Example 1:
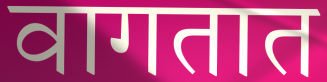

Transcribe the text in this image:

वागतात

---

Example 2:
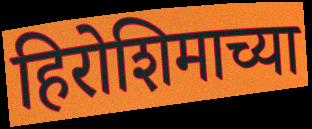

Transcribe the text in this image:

हिरोशिमाच्या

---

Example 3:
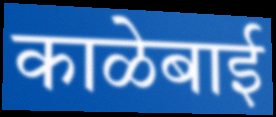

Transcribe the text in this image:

काळेबाई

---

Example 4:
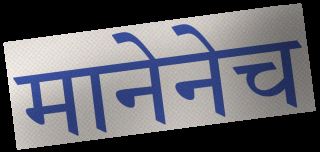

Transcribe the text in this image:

मानेनेच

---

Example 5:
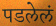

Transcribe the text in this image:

पडलेलं